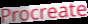
Procreate